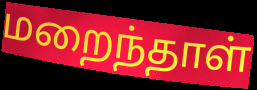
மறைந்தாள்